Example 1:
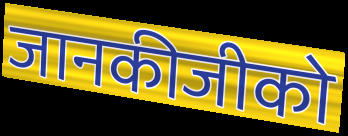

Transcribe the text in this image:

जानकीजीको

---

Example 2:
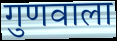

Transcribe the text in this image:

गुणवाला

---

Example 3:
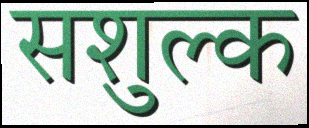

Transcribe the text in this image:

सशुल्क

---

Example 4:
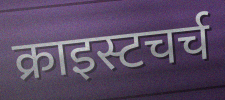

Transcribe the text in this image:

क्राइस्टचर्च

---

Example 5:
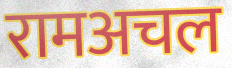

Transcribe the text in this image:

रामअचल